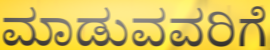
ಮಾಡುವವರಿಗೆ